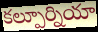
కల్పూర్నియా